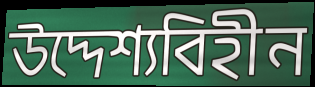
উদ্দেশ্যবিহীন